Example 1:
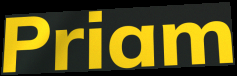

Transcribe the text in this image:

Priam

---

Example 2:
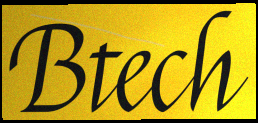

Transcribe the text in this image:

Btech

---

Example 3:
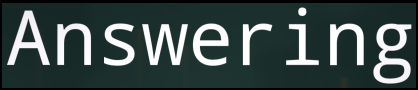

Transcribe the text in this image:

Answering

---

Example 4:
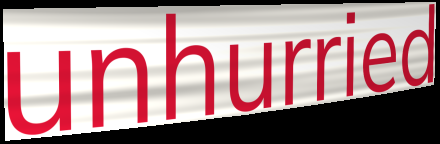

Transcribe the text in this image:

unhurried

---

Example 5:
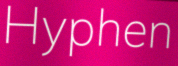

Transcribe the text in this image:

Hyphen